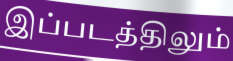
இப்படத்திலும்